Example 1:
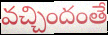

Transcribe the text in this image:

వచ్చిందంతే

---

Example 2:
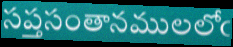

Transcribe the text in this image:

సప్తసంతానములలోఁ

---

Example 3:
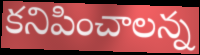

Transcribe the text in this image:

కనిపించాలన్న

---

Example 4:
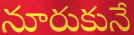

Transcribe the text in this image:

నూరుకునే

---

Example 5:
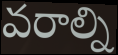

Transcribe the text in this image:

వరాల్ని